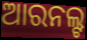
ଆରନଲ୍ଟ